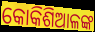
କୋକିଶିଆଳଙ୍କ